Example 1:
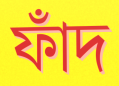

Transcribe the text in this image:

ফাঁদ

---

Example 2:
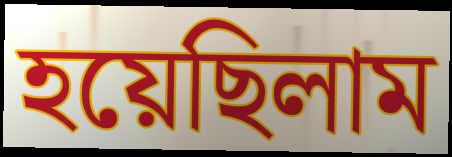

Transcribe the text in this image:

হয়েছিলাম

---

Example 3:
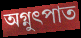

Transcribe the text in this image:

অগ্নুৎপাত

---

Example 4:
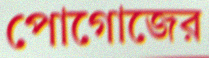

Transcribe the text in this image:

পোগোজের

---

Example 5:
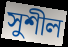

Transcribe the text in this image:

সুশীল